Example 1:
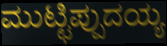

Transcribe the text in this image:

ಮುಟ್ಟಿಪ್ಪುದಯ್ಯ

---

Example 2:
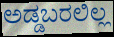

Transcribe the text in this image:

ಅಡ್ಡಬರಲಿಲ್ಲ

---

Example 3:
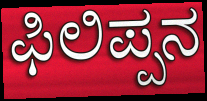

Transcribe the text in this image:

ಫಿಲಿಪ್ಪನ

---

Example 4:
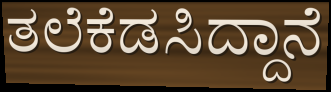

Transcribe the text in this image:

ತಲೆಕೆಡಸಿದ್ದಾನೆ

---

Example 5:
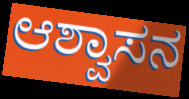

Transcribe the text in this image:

ಆಶ್ವಾಸನ